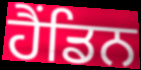
ਹੈਂਡਿਨ